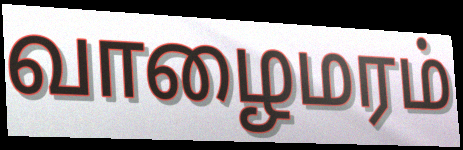
வாழைமரம்